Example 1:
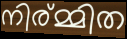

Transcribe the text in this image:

നിര്മ്മിത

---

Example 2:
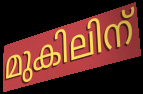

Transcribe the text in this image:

മുകിലിന്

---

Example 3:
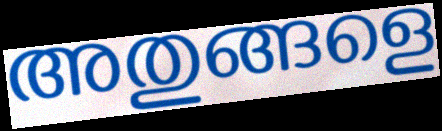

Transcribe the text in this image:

അതുങ്ങളെ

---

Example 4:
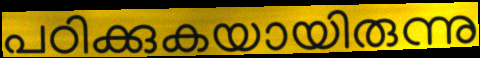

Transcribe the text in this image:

പഠിക്കുകയായിരുന്നു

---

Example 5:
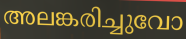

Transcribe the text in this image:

അലങ്കരിച്ചുവോ